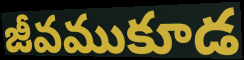
జీవముకూడ